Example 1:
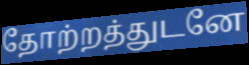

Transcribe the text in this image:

தோற்றத்துடனே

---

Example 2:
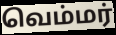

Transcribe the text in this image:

வெம்மர்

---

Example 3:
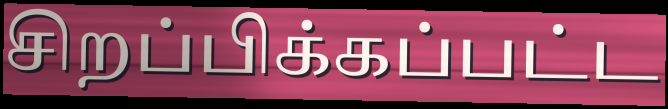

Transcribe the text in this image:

சிறப்பிக்கப்பட்ட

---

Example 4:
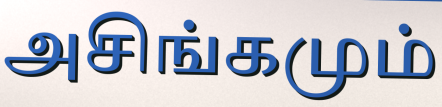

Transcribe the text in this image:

அசிங்கமும்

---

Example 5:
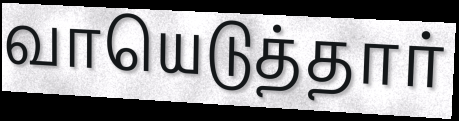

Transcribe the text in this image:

வாயெடுத்தார்